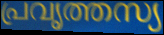
പ്രവൃത്തസ്യ